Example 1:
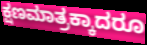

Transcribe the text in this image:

ಕ್ಷಣಮಾತ್ರಕ್ಕಾದರೂ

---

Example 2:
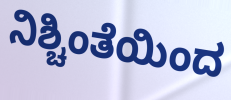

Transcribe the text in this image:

ನಿಶ್ಚಿಂತೆಯಿಂದ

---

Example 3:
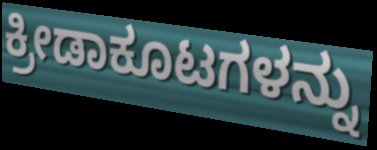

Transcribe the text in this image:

ಕ್ರೀಡಾಕೂಟಗಳನ್ನು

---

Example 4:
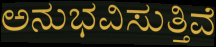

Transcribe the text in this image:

ಅನುಭವಿಸುತ್ತಿವೆ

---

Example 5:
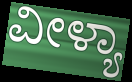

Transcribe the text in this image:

ವೀಳ್ಯಾ